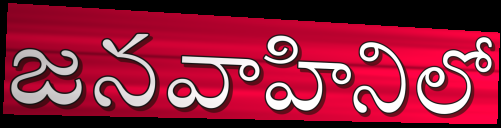
జనవాహినిలో